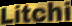
Litchi